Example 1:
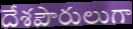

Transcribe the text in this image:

దేశపౌరులుగా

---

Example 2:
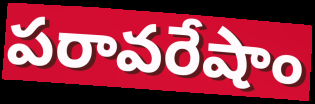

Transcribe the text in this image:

పరావరేషాం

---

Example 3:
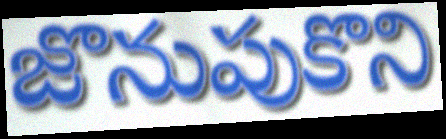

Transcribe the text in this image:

జొనుపుకొని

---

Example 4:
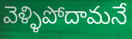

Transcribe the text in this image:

వెళ్ళిపోదామనే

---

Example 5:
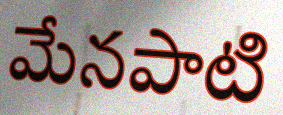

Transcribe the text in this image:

మేనపాటి